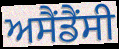
ਅਸੈਂਡੈਂਸੀ